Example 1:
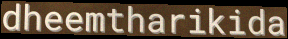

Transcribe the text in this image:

dheemtharikida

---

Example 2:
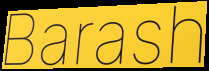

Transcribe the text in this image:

Barash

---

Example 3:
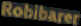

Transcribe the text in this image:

Robibarer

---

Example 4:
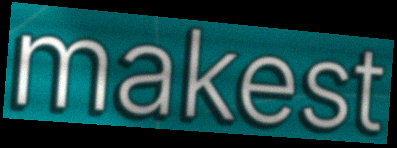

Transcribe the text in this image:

makest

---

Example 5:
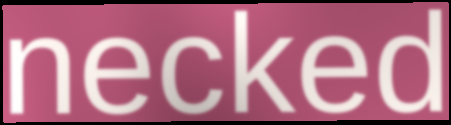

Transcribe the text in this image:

necked